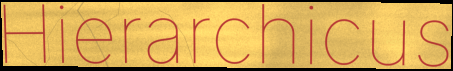
Hierarchicus